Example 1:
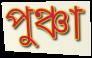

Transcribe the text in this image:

পুঞ্চা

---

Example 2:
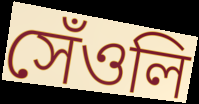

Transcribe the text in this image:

সেঁওলি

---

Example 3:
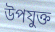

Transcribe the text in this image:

উপযুক্ত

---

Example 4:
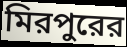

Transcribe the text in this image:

মিরপুরের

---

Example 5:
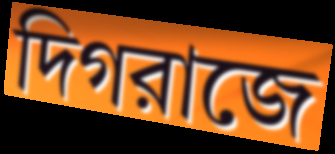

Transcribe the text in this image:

দিগরাজে